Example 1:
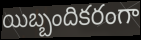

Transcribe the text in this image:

యిబ్బందికరంగా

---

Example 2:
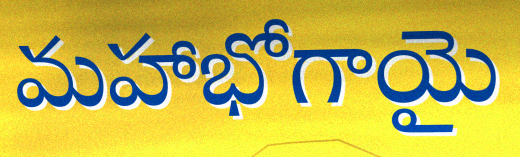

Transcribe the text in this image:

మహాభోగాయై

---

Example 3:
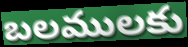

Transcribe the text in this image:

బలములకు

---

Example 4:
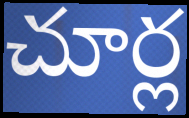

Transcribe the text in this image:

చూర్ల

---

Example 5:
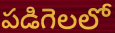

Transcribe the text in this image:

పడిగెలలో